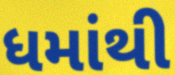
ધમાંથી